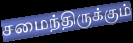
சமைந்திருக்கும்